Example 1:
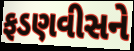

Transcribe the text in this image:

ફડણવીસને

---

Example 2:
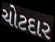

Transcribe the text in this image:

ચોટદાર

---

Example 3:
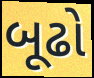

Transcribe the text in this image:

બૂઢો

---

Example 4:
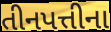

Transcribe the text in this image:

તીનપત્તીના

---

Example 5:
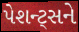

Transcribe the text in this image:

પેશન્ટ્સને